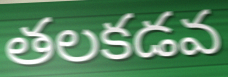
తలకడవ